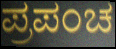
ಪ್ರಪಂಚ